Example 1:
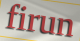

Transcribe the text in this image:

firun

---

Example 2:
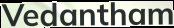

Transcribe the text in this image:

Vedantham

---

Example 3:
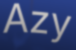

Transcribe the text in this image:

Azy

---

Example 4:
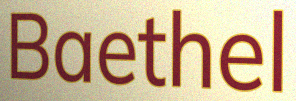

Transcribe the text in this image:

Baethel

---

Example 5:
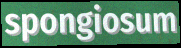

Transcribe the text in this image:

spongiosum